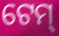
ଟେମ୍